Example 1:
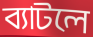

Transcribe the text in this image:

ব্যাটলে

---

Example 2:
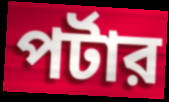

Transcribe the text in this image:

পর্টার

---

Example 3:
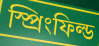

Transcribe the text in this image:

স্প্রিংফিল্ড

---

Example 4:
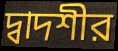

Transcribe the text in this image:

দ্বাদশীর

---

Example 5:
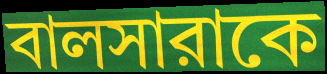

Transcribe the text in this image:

বালসারাকে